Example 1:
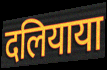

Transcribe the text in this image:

दलियाया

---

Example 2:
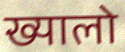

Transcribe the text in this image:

ख्यालो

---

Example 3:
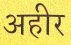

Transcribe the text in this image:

अहीर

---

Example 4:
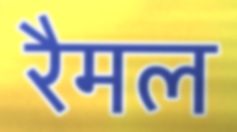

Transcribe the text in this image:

रैमल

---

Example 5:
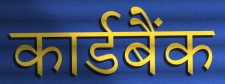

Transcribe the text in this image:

कार्डबैंक